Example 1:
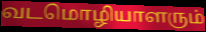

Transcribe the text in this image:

வடமொழியாளரும்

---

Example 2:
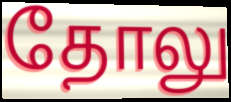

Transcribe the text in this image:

தோலு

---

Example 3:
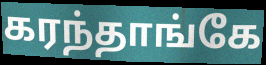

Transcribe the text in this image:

கரந்தாங்கே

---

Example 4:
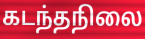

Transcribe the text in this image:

கடந்தநிலை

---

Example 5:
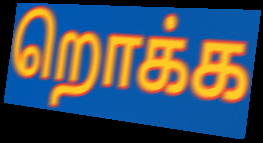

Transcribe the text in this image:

றொக்க